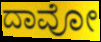
ದಾವೋ